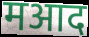
मआद